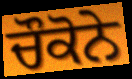
ਚੌਕੋਨੇ